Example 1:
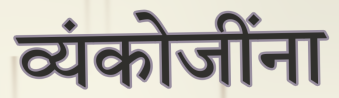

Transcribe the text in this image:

व्यंकोजींना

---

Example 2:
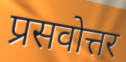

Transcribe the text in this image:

प्रसवोत्तर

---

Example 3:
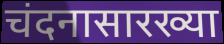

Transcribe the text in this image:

चंदनासारख्या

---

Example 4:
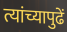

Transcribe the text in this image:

त्यांच्यापुढें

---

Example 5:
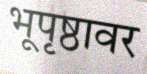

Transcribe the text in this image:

भूपृष्ठावर